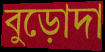
বুড়োদা